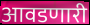
आवडणारी